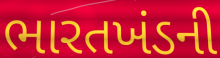
ભારતખંડની